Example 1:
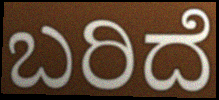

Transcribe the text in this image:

ಬರಿದೆ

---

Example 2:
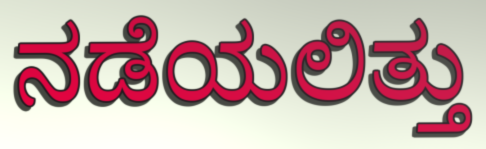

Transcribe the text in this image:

ನಡೆಯಲಿತ್ತು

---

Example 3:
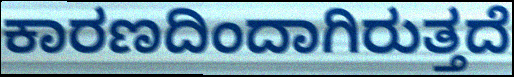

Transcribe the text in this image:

ಕಾರಣದಿಂದಾಗಿರುತ್ತದೆ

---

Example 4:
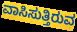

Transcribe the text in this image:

ವಾಸಿಸುತ್ತಿರುವ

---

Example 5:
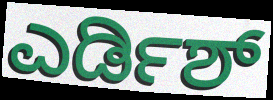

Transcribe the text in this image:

ಎರ್ಡಿಶ್